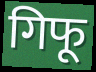
गिफू